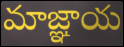
మాజ్ఞాయ